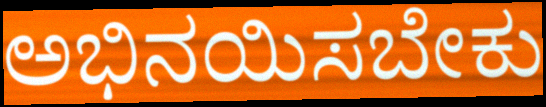
ಅಭಿನಯಿಸಬೇಕು